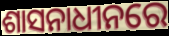
ଶାସନାଧୀନରେ